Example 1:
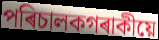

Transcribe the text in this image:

পৰিচালকগৰাকীয়ে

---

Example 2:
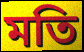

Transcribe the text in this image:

মতি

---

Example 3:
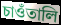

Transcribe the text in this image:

চাওঁতালি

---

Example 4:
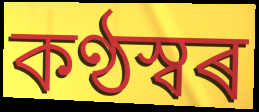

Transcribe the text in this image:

কণ্ঠস্বৰ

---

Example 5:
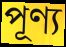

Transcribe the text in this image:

পূণ্য